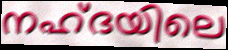
നഹ്ദയിലെ